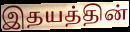
இதயத்தின்